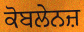
ਕੋਬਲੇਨਜ਼